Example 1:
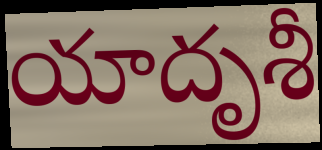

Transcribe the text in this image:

యాదృశీ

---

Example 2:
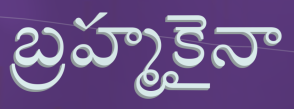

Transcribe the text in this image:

బ్రహ్మకైనా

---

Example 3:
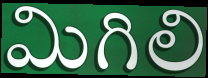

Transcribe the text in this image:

మిగిలి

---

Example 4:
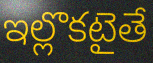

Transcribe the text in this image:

ఇల్లొకటైతే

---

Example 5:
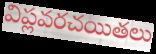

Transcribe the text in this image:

విప్లవరచయితలు